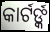
କାର୍ଟର୍ଙ୍କ